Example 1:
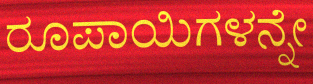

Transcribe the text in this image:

ರೂಪಾಯಿಗಳನ್ನೇ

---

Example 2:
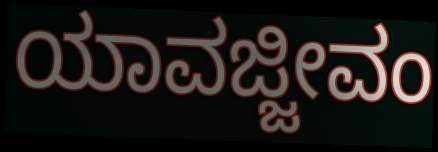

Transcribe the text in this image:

ಯಾವಜ್ಜೀವಂ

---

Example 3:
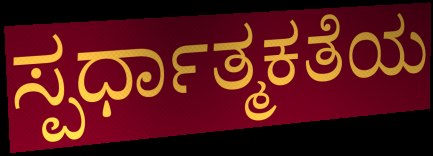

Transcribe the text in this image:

ಸ್ಪರ್ಧಾತ್ಮಕತೆಯ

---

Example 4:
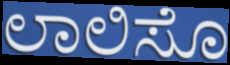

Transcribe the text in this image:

ಲಾಲಿಸೊ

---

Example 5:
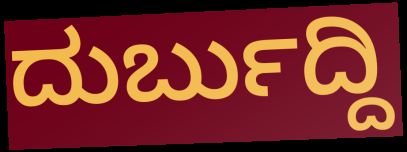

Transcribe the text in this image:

ದುರ್ಬುದ್ದಿ